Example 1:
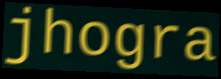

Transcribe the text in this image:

jhogra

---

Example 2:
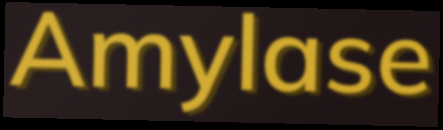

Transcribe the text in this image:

Amylase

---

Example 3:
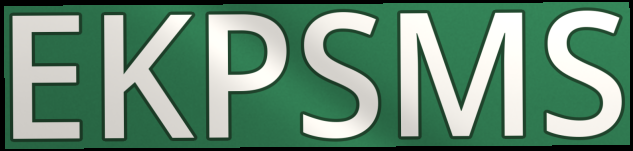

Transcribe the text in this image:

EKPSMS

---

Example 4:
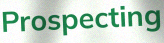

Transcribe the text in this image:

Prospecting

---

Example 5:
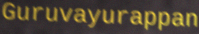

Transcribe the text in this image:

Guruvayurappan